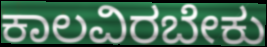
ಕಾಲವಿರಬೇಕು